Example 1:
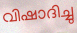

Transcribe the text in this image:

വിഷാദിച്ചു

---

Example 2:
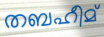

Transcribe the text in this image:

തബഹീമ്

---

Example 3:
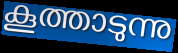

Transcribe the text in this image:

കൂത്താടുന്നു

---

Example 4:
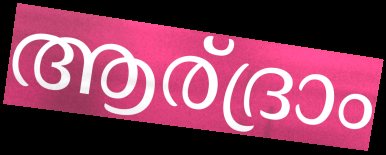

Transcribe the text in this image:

ആര്ദ്രാം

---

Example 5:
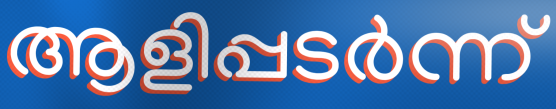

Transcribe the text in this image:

ആളിപ്പടർന്ന്